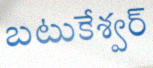
బటుకేశ్వర్